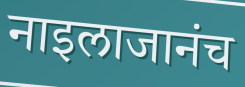
नाइलाजानंच